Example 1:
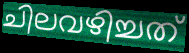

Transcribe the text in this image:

ചിലവഴിച്ചത്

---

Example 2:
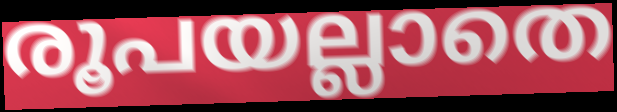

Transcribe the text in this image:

രൂപയല്ലാതെ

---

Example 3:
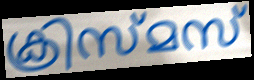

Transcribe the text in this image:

ക്രിസ്മസ്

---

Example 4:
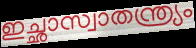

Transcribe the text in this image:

ഇച്ഛാസ്വാതന്ത്ര്യം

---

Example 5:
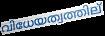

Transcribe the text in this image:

വിധേയത്വത്തില്